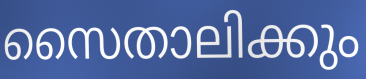
സൈതാലിക്കും